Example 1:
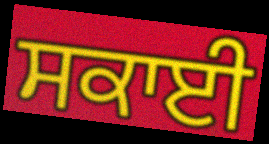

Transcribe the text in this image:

ਸਕਾਈ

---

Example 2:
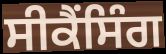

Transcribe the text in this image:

ਸੀਕੈਂਸਿੰਗ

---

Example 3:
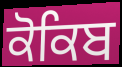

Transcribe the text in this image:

ਕੋਕਿਬ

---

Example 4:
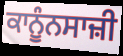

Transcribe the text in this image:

ਕਾਨੂੰਨਸਾਜ਼ੀ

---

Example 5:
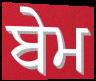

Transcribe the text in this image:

ਬੇਮ